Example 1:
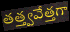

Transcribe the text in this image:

తత్త్వవేత్తగా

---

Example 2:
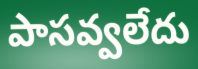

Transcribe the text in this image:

పాసవ్వలేదు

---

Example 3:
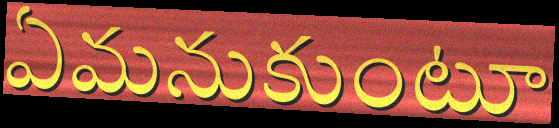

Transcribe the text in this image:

ఏమనుకుంటూ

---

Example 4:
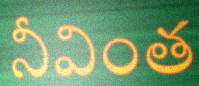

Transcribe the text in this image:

నీవింత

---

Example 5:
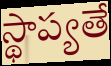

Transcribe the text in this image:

స్థాప్యతే